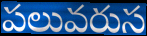
పలువరుస